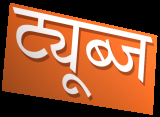
ट्यूब्ज